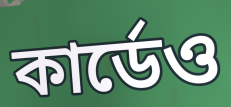
কার্ডেও